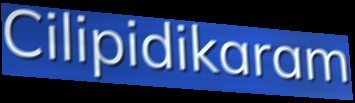
Cilipidikaram